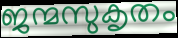
ജന്മസുകൃതം